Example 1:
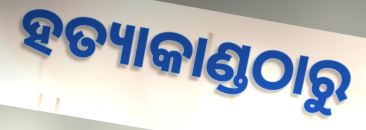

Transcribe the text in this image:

ହତ୍ୟାକାଣ୍ଡଠାରୁ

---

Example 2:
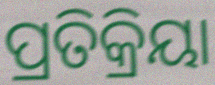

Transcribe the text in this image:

ପ୍ରତିକ୍ରିୟା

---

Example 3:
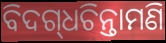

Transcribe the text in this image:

ବିଦଗ୍‌ଧଚିନ୍ତାମଣି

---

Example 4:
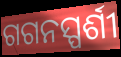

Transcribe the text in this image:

ଗଗନସ୍ପର୍ଶୀ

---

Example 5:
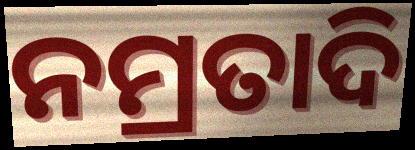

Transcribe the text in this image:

ନମ୍ରତାଦି